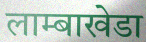
लाम्बाखेडा